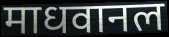
माधवानल